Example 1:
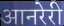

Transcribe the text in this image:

आनरेरी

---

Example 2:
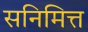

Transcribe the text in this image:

सनिमित्त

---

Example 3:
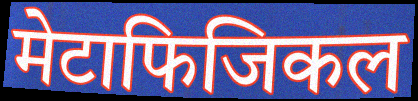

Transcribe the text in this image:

मेटाफिजिकल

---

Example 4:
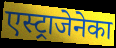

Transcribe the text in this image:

एस्ट्राजेनेका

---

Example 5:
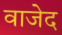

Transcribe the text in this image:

वाजेद